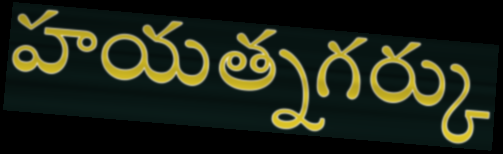
హయత్నగర్కు